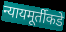
न्यायमूर्तीकडे